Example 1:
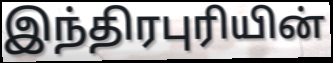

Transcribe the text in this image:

இந்திரபுரியின்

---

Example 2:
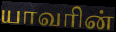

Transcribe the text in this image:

யாவரின்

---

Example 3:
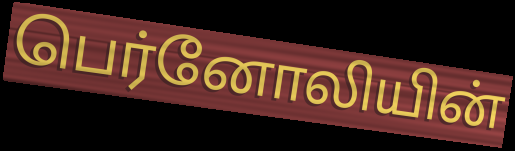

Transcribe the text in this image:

பெர்னோலியின்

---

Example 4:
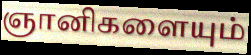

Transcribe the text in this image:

ஞானிகளையும்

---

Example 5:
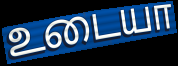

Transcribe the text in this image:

உடையா